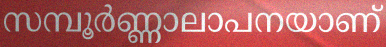
സമ്പൂർണ്ണാലാപനയാണ്